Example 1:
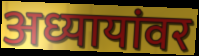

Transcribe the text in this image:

अध्यायांवर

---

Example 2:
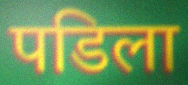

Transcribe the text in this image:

पडिला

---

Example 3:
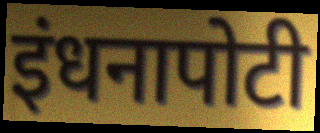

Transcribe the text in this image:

इंधनापोटी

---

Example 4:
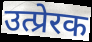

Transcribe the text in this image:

उत्प्रेरक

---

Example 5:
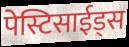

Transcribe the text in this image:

पेस्टिसाईड्स